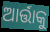
ଆର୍ତ୍ତାକୁ